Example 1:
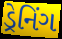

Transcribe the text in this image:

ડ્રેનિંગ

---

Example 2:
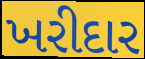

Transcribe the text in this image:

ખરીદાર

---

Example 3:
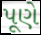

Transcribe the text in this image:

પૂણે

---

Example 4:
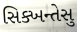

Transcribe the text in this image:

સિક્ખન્તેસુ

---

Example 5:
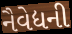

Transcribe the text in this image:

નૈવેદ્યની